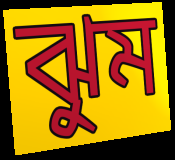
ঝুম